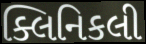
ક્લિનિકલી